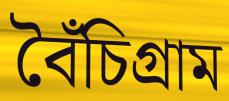
বৈঁচিগ্রাম